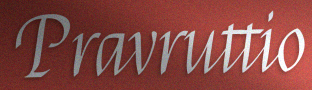
Pravruttio